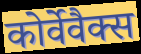
कोर्वेवैक्स